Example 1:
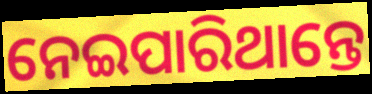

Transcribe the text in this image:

ନେଇପାରିଥାନ୍ତେ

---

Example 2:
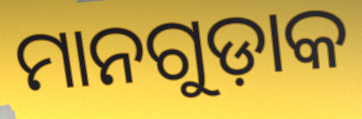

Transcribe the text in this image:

ମାନଗୁଡ଼ାକ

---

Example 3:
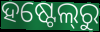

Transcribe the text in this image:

ହଷ୍ଟେଲ୍‍ରୁ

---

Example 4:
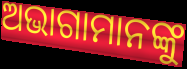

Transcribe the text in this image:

ଅଭାଗାମାନଙ୍କୁ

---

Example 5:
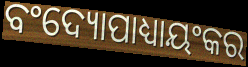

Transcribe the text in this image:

ବଂଦ୍ୟୋପାଧ୍ୟାୟଂକର